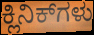
ಕ್ಲಿನಿಕ್‌ಗಳು